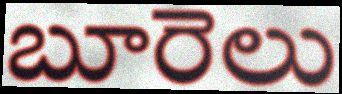
బూరెలు